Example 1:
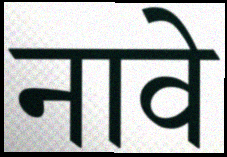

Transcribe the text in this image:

नावे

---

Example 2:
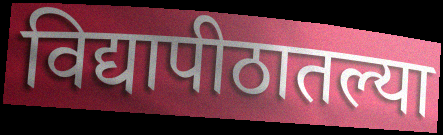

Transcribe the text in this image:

विद्यापीठातल्या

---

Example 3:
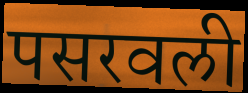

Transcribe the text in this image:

पसरवली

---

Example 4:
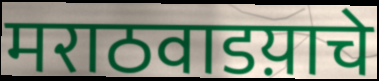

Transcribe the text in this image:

मराठवाडय़ाचे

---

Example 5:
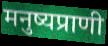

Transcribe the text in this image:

मनुष्यप्राणी